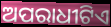
ଅପରାଧୀଟିଏ